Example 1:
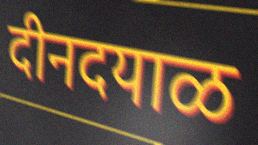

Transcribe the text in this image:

दीनदयाळ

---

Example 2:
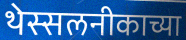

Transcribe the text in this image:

थेस्सलनीकाच्या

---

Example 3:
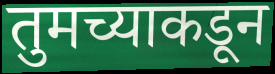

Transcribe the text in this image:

तुमच्याकडून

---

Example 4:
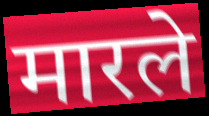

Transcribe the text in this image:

मारले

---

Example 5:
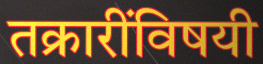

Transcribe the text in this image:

तक्रारींविषयी